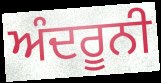
ਅੰਦਰੂਨੀ